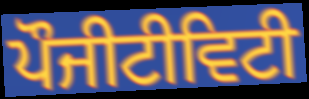
ਪੌਜੀਟੀਵਿਟੀ